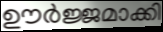
ഊർജ്ജമാക്കി